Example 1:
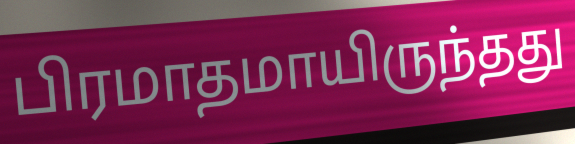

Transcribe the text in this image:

பிரமாதமாயிருந்தது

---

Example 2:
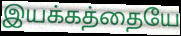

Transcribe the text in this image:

இயக்கத்தையே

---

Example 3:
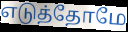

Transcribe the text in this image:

எடுத்தோமே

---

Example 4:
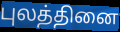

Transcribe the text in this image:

புலத்தினை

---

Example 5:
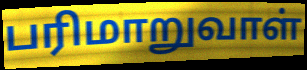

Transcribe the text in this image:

பரிமாறுவாள்